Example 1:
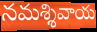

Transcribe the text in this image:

నమశ్శివాయ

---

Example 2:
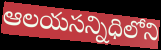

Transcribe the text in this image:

ఆలయసన్నిధిలోని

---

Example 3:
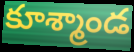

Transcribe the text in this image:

కూశ్మాండ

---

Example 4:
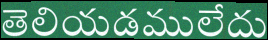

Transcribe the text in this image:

తెలియడములేదు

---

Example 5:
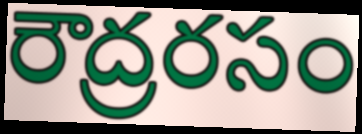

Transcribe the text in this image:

రౌద్రరసం